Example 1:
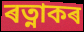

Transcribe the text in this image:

ৰত্নাকৰ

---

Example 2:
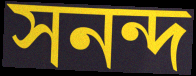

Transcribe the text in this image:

সনন্দ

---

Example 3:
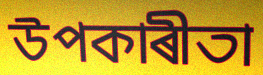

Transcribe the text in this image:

উপকাৰীতা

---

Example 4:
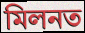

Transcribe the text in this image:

মিলনত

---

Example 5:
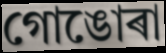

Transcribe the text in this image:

গোঙোৰা